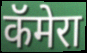
कॅमेरा